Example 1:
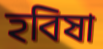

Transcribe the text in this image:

হবিষা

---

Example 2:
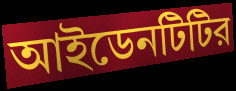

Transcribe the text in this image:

আইডেনটিটির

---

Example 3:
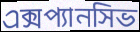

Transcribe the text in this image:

এক্সপ্যানসিভ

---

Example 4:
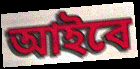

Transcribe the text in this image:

আইবে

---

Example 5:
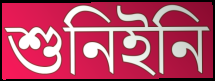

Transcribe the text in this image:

শুনিইনি